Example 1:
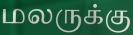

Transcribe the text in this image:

மலருக்கு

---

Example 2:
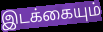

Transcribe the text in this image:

இடக்கையும்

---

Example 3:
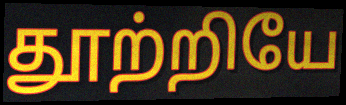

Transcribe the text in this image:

தூற்றியே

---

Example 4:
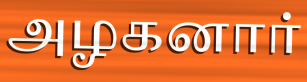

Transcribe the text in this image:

அழகனார்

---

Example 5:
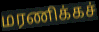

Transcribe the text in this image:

மரணிக்கச்